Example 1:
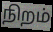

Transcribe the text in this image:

நிறம்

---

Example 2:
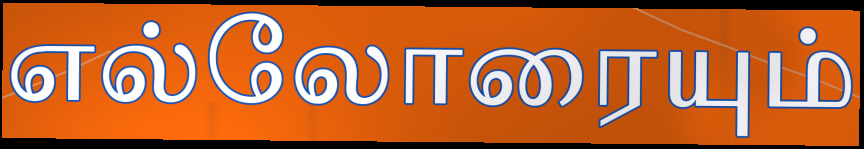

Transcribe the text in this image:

எல்லோரையும்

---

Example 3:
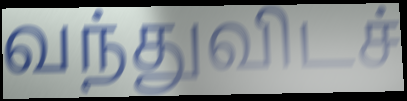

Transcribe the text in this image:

வந்துவிடச்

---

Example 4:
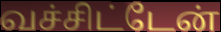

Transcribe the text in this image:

வச்சிட்டேன்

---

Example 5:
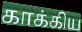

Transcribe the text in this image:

காக்கிய